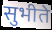
सुभीते